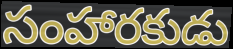
సంహారకుడు